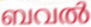
ബവൽ